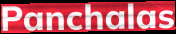
Panchalas